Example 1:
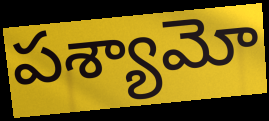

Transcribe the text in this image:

పశ్యామో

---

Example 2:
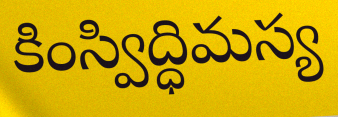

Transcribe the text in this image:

కింస్విద్ధిమస్య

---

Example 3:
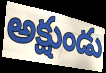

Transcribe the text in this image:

అక్షుండు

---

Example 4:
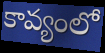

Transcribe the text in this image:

కావ్యంలో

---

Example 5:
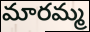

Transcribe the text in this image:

మారమ్మ